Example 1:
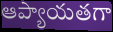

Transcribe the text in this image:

ఆప్యాయతగా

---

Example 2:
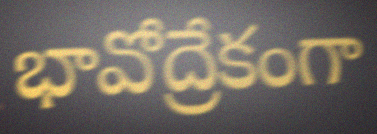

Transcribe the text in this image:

భావోద్రేకంగా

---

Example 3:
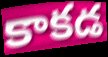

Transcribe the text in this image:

కాకడ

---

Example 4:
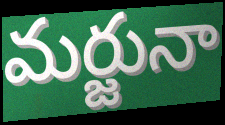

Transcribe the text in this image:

మర్జునా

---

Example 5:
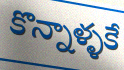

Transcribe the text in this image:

కొన్నాళ్ళకే